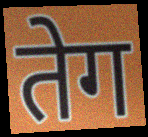
तेग